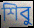
শিবু